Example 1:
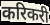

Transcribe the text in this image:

करिकरी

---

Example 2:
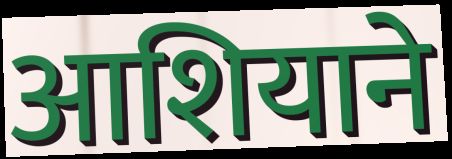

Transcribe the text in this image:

आशियाने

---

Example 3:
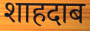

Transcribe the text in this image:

शाहदाब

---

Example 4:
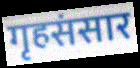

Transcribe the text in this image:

गृहसंसार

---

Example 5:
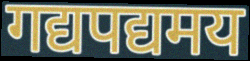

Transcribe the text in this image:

गद्यपद्यमय